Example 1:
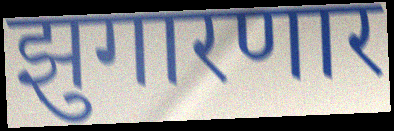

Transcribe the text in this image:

झुगारणार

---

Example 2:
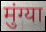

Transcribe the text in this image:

मुंग्या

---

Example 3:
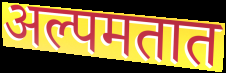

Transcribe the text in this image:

अल्पमतात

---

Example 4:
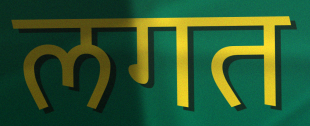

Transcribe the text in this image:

लगत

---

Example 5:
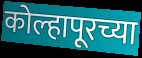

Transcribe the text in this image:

कोल्हापूरच्या